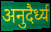
अनुदैर्ध्य